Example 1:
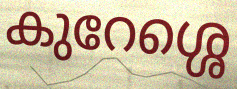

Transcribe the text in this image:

കുറേശ്ശെ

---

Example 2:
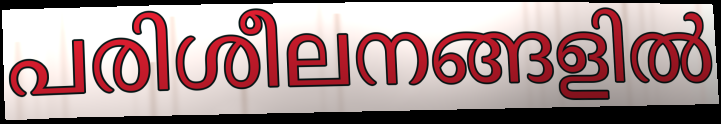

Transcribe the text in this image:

പരിശീലനങ്ങളിൽ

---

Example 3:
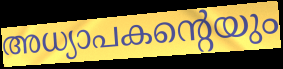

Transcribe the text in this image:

അധ്യാപകന്റെയും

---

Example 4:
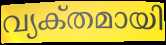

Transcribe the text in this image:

വ്യക്‌തമായി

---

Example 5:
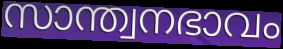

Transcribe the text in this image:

സാന്ത്വനഭാവം